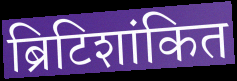
ब्रिटिशांकित